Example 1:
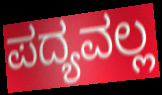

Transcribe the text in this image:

ಪದ್ಯವಲ್ಲ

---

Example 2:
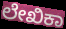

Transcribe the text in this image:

ಲೇಖಿಕಾ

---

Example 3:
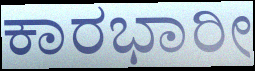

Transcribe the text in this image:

ಕಾರಭಾರೀ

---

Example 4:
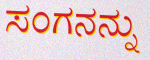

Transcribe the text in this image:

ಸಂಗನನ್ನು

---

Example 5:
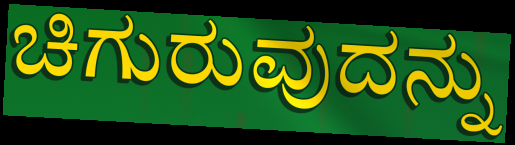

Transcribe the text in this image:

ಚಿಗುರುವುದನ್ನು